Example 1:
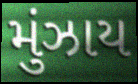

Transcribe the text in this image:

મુંઝાય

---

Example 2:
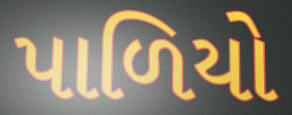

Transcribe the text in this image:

પાળિયો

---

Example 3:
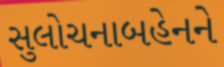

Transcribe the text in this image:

સુલોચનાબહેનને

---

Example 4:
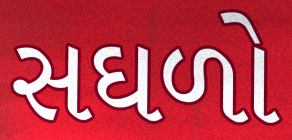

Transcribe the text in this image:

સઘળો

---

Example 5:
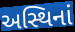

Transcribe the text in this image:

અસ્થિનાં